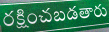
రక్షించబడతారు